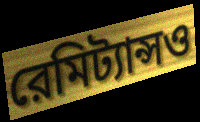
রেমিট্যান্সও